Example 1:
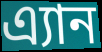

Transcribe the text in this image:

এ্যান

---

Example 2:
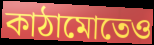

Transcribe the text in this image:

কাঠামোতেও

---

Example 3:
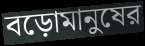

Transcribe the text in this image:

বড়োমানুষের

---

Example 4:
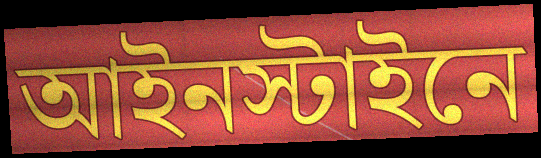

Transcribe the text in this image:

আইনস্টাইনে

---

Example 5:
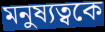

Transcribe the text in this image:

মনুষ্যত্বকে